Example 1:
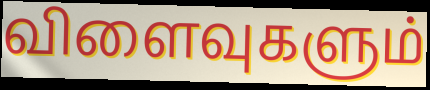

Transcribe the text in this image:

விளைவுகளும்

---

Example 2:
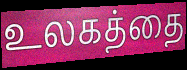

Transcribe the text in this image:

உலகத்தை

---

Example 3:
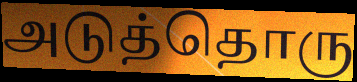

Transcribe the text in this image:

அடுத்தொரு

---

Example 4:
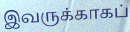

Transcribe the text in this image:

இவருக்காகப்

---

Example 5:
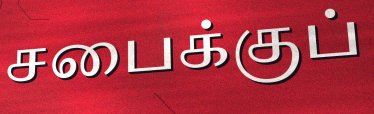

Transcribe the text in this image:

சபைக்குப்